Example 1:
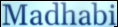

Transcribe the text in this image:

Madhabi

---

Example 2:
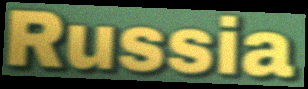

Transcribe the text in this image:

Russia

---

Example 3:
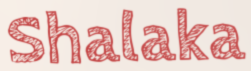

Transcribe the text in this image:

Shalaka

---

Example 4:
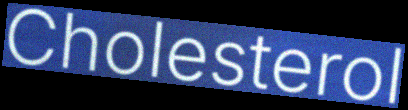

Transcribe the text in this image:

Cholesterol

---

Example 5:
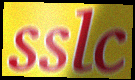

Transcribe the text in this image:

sslc